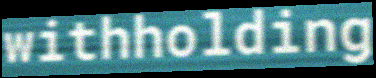
withholding